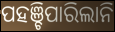
ପହଞ୍ଚିପାରିଲାନି